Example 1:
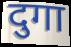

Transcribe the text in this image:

दुगा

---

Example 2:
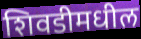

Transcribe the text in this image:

शिवडीमधील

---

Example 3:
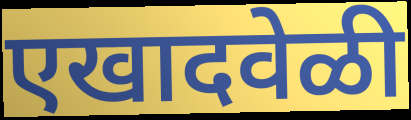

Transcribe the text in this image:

एखादवेळी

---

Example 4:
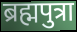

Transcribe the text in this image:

ब्रह्मपुत्रा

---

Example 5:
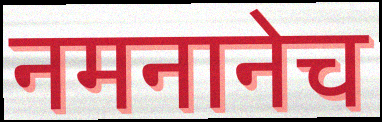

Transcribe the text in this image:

नमनानेच